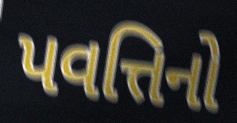
પવત્તિનો